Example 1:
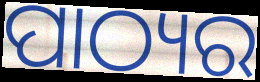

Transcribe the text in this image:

ପାଠ୍ୟର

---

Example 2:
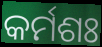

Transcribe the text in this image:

କର୍ମଶଃ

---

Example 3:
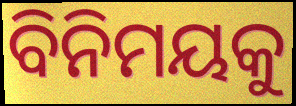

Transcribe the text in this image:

ବିନିମୟକୁ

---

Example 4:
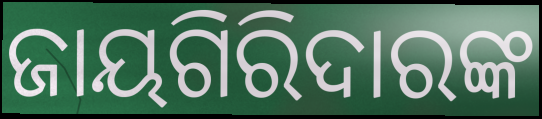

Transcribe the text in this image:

ଜାୟଗିରିଦାରଙ୍କ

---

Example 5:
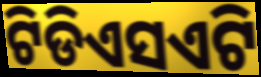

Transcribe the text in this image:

ଟିଡିଏସଏଟି